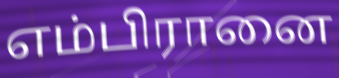
எம்பிரானை